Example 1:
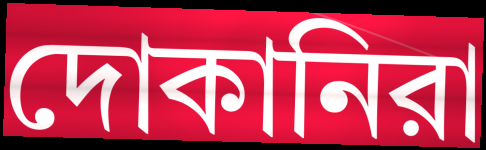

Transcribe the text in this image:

দোকানিরা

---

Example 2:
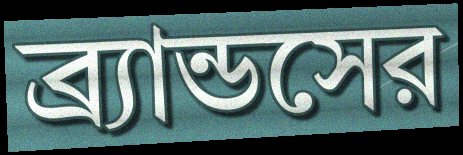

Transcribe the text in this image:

ব্র্যান্ডসের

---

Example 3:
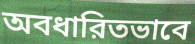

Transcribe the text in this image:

অবধারিতভাবে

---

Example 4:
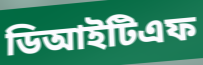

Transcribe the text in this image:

ডিআইটিএফ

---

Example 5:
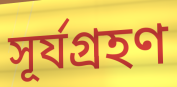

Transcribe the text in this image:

সূর্যগ্রহণ